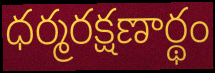
ధర్మరక్షణార్థం